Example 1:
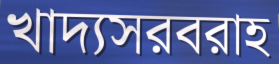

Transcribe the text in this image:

খাদ্যসরবরাহ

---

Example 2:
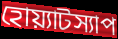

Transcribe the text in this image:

হোয়্যাটস্যাপ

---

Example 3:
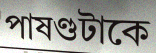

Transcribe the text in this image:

পাষণ্ডটাকে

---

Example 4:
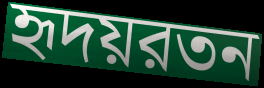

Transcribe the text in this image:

হৃদয়রতন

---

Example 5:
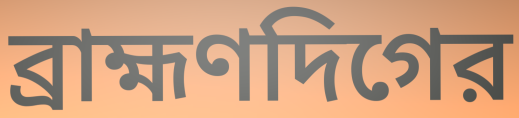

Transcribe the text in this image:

ব্রাহ্মণদিগের